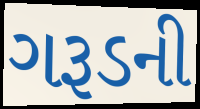
ગરૂડની